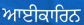
ਆਈਕਾਰਿਨ